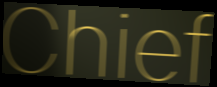
Chief